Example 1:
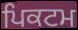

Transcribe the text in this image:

ਪਿਕਟਮ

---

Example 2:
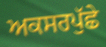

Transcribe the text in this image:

ਅਕਸਰਪੁੱਛੇ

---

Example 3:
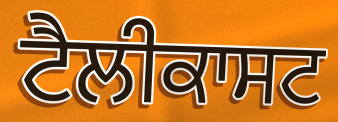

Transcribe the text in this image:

ਟੈਲੀਕਾਸਟ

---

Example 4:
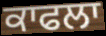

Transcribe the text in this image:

ਕਾਫਲਾ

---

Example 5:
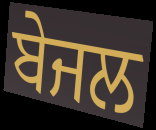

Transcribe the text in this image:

ਬੇਜਲ